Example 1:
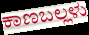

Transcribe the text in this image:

ಕಾಣಬಲ್ಲಳು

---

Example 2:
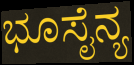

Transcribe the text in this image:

ಭೂಸೈನ್ಯ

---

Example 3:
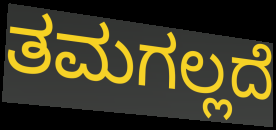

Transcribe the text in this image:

ತಮಗಲ್ಲದೆ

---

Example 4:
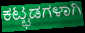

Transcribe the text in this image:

ಕಟ್ಟಡಗಳಾಗಿ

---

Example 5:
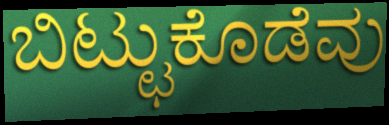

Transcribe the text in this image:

ಬಿಟ್ಟುಕೊಡೆವು